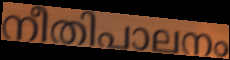
നീതിപാലനം